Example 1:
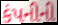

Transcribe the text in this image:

કંપનીની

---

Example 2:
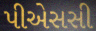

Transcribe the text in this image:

પીએસસી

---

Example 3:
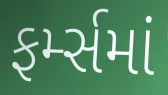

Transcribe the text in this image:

ફર્મ્સમાં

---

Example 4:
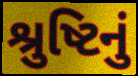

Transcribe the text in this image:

શ્રુષ્ટિનું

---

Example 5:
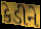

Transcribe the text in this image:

કેડીને